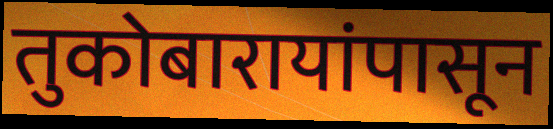
तुकोबारायांपासून